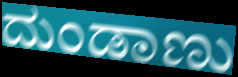
ದುಂಡಾಣು